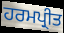
ਹਰਮਪ੍ਰੀਤ